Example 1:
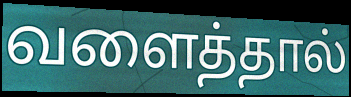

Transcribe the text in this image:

வளைத்தால்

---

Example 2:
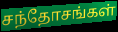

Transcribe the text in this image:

சந்தோசங்கள்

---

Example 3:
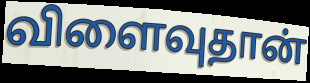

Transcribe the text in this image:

விளைவுதான்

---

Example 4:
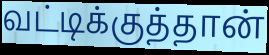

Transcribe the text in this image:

வட்டிக்குத்தான்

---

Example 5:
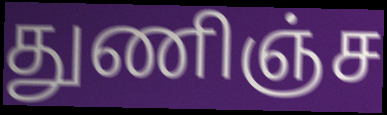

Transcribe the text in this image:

துணிஞ்ச